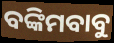
ବଙ୍କିମବାବୁ